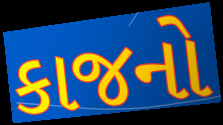
કાજનો